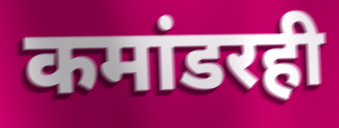
कमांडरही